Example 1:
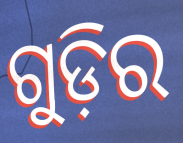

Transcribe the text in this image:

ଗୁଡ଼ିର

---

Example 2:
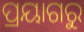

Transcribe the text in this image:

ପ୍ରୟାଗରୁ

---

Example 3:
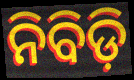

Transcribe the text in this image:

ନିବିଡ଼ି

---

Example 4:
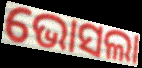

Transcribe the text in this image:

ଭୋସଲା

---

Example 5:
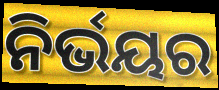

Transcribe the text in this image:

ନିର୍ଭୟର